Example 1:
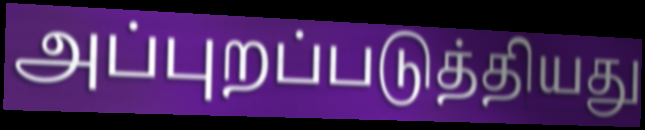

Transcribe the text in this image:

அப்புறப்படுத்தியது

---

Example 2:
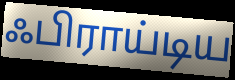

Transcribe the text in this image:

ஃபிராய்டிய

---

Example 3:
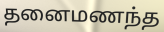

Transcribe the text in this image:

தனைமணந்த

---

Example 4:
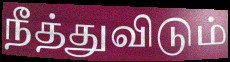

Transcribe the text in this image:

நீத்துவிடும்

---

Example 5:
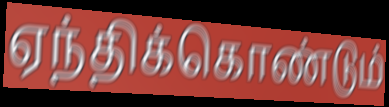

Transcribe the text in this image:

ஏந்திக்கொண்டும்